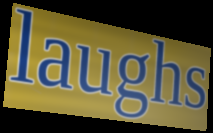
laughs